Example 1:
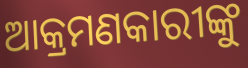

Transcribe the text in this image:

ଆକ୍ରମଣକାରୀଙ୍କୁ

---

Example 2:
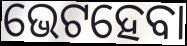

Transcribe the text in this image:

ଭେଟହେବା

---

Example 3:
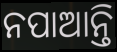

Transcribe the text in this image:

ନପାଆନ୍ତି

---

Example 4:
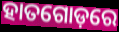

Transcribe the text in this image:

ହାତଗୋଡ଼ରେ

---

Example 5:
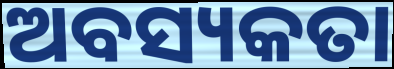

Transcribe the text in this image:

ଅବସ୍ୟକତା